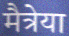
मैत्रेया